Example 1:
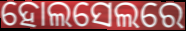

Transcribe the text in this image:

ହୋଲସେଲରେ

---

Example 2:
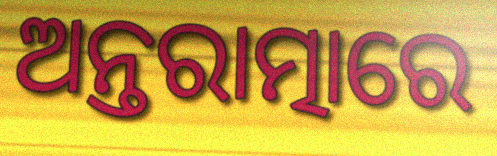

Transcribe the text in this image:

ଅନ୍ତରାତ୍ମାରେ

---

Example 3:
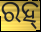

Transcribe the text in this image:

ରହ୍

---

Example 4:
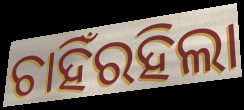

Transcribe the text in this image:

ଚାହିଁରହିଲା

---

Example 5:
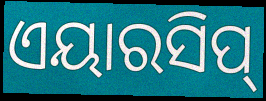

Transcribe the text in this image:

ଏୟାରସିପ୍